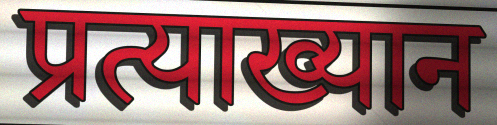
प्रत्याख्यान